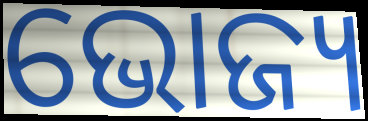
ଭୋଜ୍ୟ